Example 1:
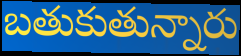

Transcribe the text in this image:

బతుకుతున్నారు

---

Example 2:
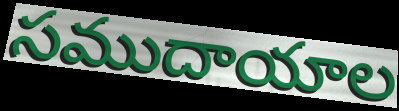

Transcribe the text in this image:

సముదాయాల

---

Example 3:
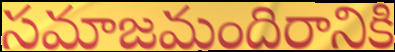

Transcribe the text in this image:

సమాజమందిరానికి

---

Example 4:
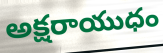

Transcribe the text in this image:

అక్షరాయుధం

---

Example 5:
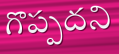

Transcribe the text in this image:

గొప్పదని